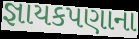
જ્ઞાયકપણાના